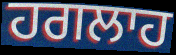
ਹਗਲਾਹ